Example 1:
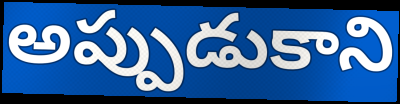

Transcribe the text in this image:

అప్పుడుకాని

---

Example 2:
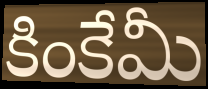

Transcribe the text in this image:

కింకేమీ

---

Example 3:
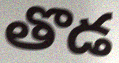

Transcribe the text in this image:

తొడ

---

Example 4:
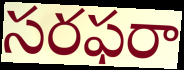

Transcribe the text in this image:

సరఫరా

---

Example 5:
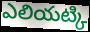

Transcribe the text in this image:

ఎలియట్కి